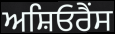
ਅਸ਼ਿਓਰੈਂਸ